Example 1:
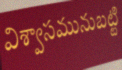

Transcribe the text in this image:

విశ్వాసమునుబట్టి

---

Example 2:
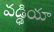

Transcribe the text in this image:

వడ్ఢియా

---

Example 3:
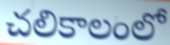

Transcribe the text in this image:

చలికాలంలో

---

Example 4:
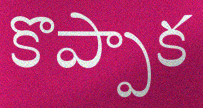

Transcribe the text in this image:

కొప్పాక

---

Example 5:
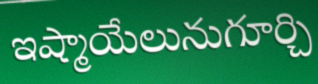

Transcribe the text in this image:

ఇష్మాయేలునుగూర్చి